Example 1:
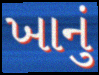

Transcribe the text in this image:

ખાનું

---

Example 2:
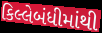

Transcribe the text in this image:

કિલ્લેબંધીમાંથી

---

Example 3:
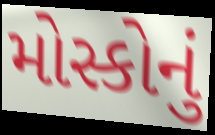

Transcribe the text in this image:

મોસ્કોનું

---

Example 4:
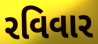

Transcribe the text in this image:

રવિવાર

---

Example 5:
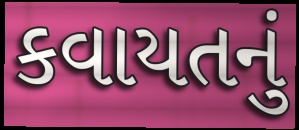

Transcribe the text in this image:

કવાયતનું